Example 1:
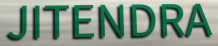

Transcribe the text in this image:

JITENDRA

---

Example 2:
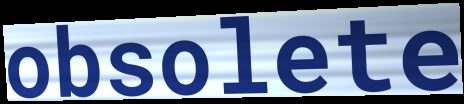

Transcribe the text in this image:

obsolete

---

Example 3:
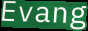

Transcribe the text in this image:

Evang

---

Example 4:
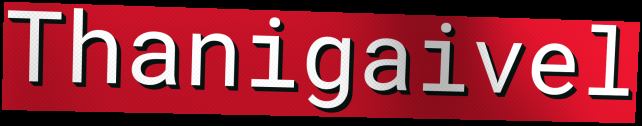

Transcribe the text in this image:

Thanigaivel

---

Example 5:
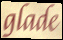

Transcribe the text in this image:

glade